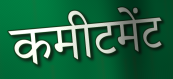
कमीटमेंट